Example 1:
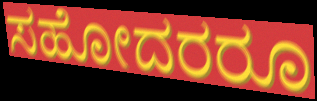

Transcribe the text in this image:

ಸಹೋದರರೂ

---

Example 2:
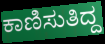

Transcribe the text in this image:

ಕಾಣಿಸುತಿದ್ದ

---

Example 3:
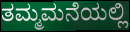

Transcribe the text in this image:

ತಮ್ಮಮನೆಯಲ್ಲಿ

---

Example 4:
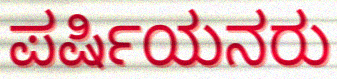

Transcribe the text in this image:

ಪರ್ಷಿಯನರು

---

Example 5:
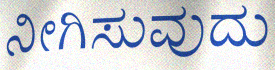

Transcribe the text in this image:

ನೀಗಿಸುವುದು